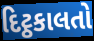
દિટ્ઠકાલતો